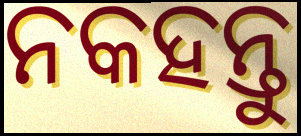
ନକହନ୍ତୁ